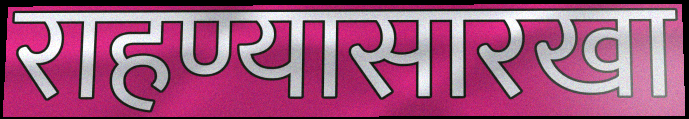
राहण्यासारखा